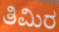
ತಿಮಿರ